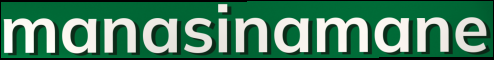
manasinamane